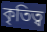
কৃতিত্ব